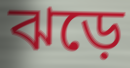
ঝড়ে